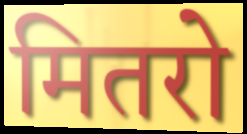
मितरो